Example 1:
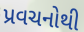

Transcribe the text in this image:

પ્રવચનોથી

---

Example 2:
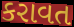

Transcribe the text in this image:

કરાવત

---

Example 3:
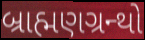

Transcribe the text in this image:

બ્રાહ્મણગ્રન્થો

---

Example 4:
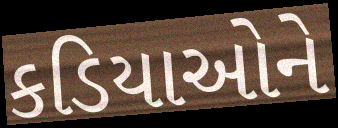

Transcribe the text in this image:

કડિયાઓને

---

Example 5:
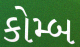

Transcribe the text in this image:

કોમ્બ